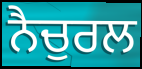
ਨੈਚੁਰਲ